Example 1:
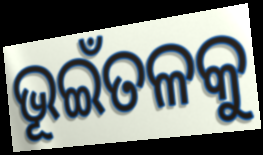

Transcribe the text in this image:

ଭୂଇଁତଳକୁ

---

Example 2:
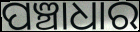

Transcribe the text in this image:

ପଞ୍ଚାଧାର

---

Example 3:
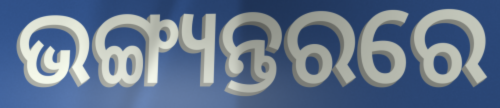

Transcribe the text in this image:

ଭଙ୍ଗ୍ୟନ୍ତରରେ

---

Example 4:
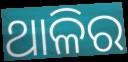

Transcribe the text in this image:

ଥାଳିର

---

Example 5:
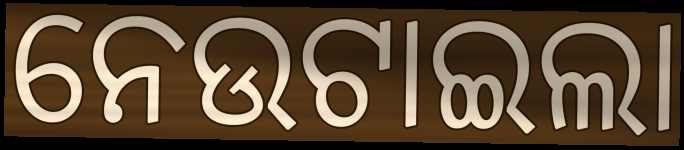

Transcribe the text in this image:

ନେଉଟାଇଲା